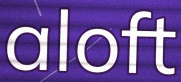
aloft